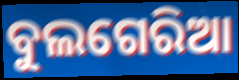
ବୁଲଗେରିଆ